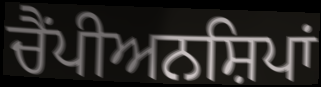
ਚੈਂਪੀਅਨਸ਼ਿਪਾਂ